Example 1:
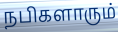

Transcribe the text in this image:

நபிகளாரும்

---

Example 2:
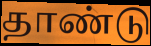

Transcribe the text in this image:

தாண்டு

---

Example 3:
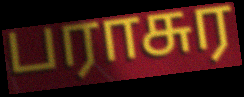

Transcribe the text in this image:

பராசுர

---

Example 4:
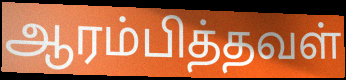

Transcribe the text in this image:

ஆரம்பித்தவள்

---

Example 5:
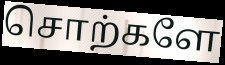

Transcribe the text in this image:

சொற்களே